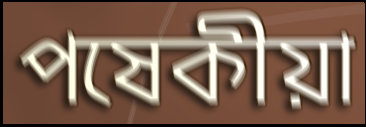
পষেকীয়া